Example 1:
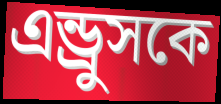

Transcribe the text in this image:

এন্ড্রুসকে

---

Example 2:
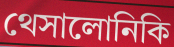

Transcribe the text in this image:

থেসালোনিকি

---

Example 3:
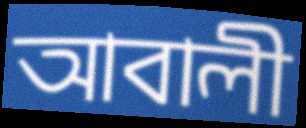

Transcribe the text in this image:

আবালী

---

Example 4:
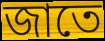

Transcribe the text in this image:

জাতে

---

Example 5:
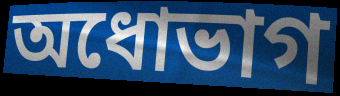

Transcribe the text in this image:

অধোভাগ